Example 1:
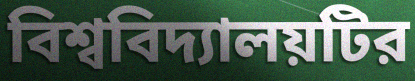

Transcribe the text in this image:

বিশ্ববিদ্যালয়টির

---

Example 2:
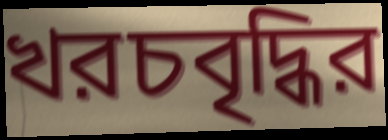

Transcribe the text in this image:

খরচবৃদ্ধির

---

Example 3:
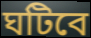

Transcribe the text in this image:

ঘটিবে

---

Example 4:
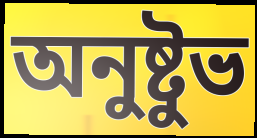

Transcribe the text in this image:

অনুষ্টুভ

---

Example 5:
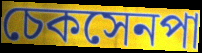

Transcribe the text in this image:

চেকসেনপা